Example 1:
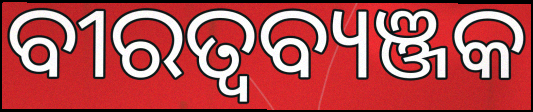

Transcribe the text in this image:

ବୀରତ୍ବବ୍ୟଞ୍ଜକ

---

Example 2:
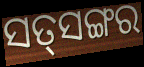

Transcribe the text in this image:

ସତ୍‌ସଙ୍ଗର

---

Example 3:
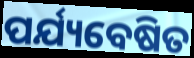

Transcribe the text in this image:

ପର୍ଯ୍ୟବେଷିତ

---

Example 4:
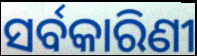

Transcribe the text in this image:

ସର୍ବକାରିଣୀ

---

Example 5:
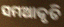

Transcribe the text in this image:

ସମଆକୃତି